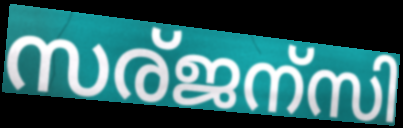
സര്ജന്സി